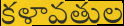
కళావతుల